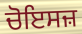
ਚੋਇਸਜ਼